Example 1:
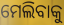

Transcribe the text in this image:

ମେଲିବାକୁ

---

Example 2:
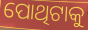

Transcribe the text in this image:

ପୋଥିଟାକୁ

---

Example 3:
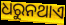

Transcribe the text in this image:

ଧରୁନଥାଏ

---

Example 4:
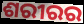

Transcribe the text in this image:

ଶରୀରର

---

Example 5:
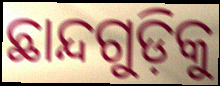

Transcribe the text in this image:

ଛାନ୍ଦଗୁଡ଼ିକୁ